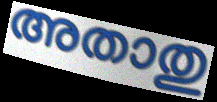
അതാതു